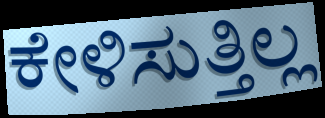
ಕೇಳಿಸುತ್ತಿಲ್ಲ